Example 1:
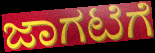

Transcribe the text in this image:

ಜಾಗಟೆಗೆ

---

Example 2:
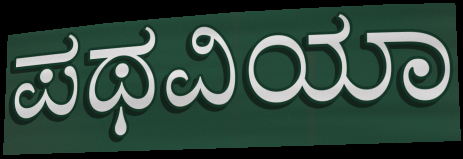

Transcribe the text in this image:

ಪಥವಿಯಾ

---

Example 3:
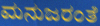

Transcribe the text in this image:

ಮನುಜರಂತೆ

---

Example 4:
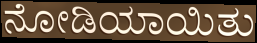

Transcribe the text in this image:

ನೋಡಿಯಾಯಿತು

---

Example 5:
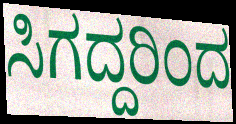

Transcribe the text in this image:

ಸಿಗದ್ದರಿಂದ